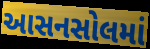
આસનસોલમાં